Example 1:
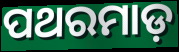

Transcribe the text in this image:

ପଥରମାଡ଼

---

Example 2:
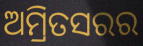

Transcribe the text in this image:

ଅମ୍ରିତସରର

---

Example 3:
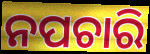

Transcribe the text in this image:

ନପଚାରି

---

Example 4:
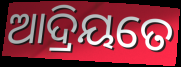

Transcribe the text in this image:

ଆଦ୍ରିୟତେ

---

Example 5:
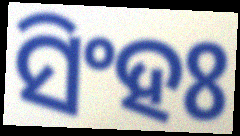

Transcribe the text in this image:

ସିଂହଃ